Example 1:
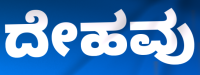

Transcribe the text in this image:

ದೇಹವು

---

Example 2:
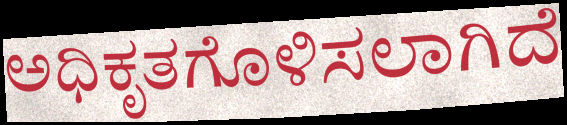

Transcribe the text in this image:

ಅಧಿಕೃತಗೊಳಿಸಲಾಗಿದೆ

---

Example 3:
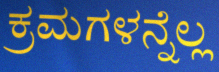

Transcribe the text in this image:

ಕ್ರಮಗಳನ್ನೆಲ್ಲ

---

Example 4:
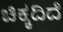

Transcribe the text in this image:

ಚಿಕ್ಕದಿದೆ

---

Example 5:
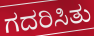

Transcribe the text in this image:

ಗದರಿಸಿತು